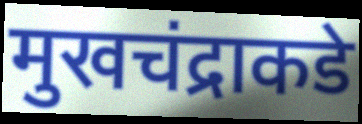
मुखचंद्राकडे